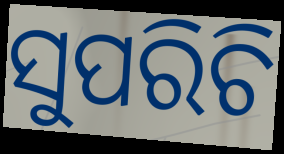
ସୁପରିଚି